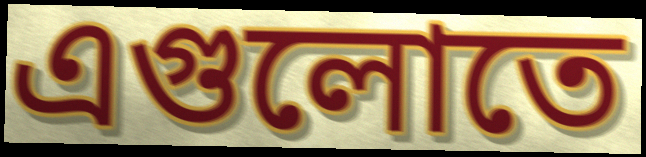
এগুলোতে